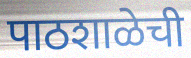
पाठशाळेची